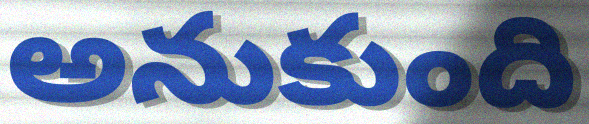
అనుకుంది